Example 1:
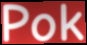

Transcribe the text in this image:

Pok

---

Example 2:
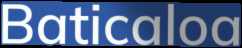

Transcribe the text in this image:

Baticaloa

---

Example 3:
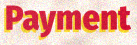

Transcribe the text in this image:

Payment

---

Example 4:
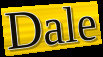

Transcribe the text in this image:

Dale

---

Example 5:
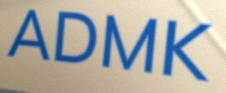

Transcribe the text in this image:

ADMK